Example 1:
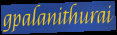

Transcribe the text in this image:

gpalanithurai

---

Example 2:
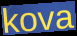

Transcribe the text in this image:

kova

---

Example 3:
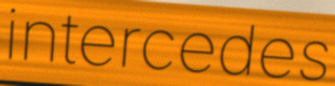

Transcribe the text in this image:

intercedes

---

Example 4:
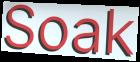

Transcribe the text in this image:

Soak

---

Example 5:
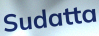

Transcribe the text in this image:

Sudatta